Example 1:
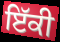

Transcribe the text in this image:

ਇੱਕੀ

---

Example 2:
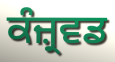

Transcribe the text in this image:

ਕੰਜ਼੍ਰਵਡ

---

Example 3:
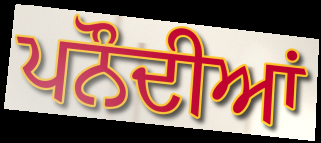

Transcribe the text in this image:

ਪਨੌਦੀਆਂ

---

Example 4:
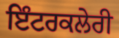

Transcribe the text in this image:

ਇੰਟਰਕਲੇਰੀ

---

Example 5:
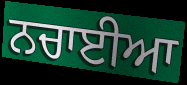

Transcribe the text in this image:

ਨਚਾਈਆ